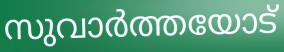
സുവാർത്തയോട്